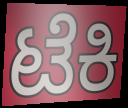
ಟೆಕಿ